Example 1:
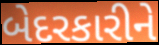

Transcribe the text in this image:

બેદરકારીને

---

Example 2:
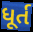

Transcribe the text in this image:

ધૂર્ત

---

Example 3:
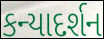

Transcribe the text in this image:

કન્યાદર્શન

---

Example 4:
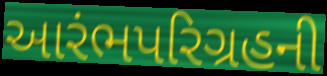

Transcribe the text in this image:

આરંભપરિગ્રહની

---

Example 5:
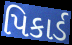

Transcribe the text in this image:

પિકાર્ડ